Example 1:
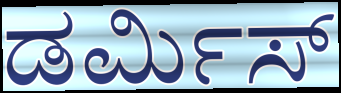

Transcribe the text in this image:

ಡರ್ಮಿಸ್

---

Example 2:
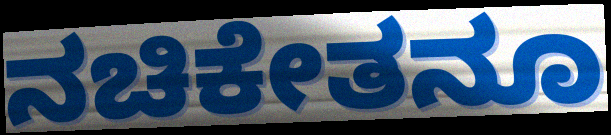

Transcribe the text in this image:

ನಚಿಕೇತನೂ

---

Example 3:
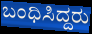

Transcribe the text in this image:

ಬಂಧಿಸಿದ್ದರು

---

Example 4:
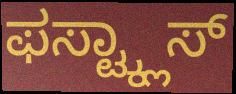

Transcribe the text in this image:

ಫಸ್ಟ್ಕ್ಲಾಸ್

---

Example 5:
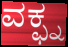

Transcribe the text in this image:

ವಕ್ಫ್ನ